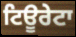
ਟਿਊਰੇਟਾ